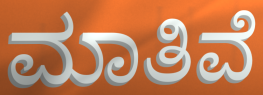
ಮಾತಿವೆ